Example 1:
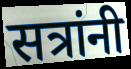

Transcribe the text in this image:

सत्रांनी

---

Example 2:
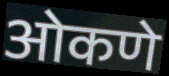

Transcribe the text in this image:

ओकणे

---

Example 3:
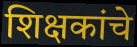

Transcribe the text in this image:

शिक्षकांचे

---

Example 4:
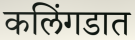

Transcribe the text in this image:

कलिंगडात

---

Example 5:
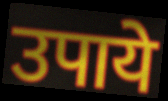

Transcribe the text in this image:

उपाये